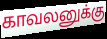
காவலனுக்கு